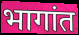
भागांत